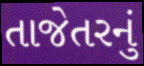
તાજેતરનું